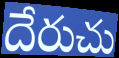
దేరుచు